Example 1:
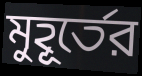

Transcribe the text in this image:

মুহূর্তের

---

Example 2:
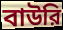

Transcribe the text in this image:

বাউরি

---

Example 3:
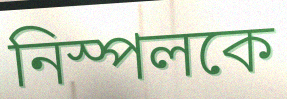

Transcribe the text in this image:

নিস্পলকে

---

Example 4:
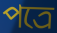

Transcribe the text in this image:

পত্রে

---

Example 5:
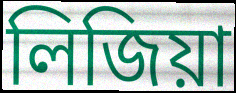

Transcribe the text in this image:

লিজিয়া